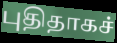
புதிதாகச்